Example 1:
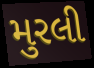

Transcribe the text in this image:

મુરલી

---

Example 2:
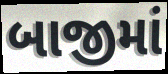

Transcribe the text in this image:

બાજીમાં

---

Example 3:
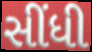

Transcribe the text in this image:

સીંધી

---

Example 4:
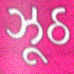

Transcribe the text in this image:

ઝૂઠ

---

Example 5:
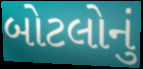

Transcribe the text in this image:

બોટલોનું